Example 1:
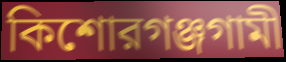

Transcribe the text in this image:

কিশোরগঞ্জগামী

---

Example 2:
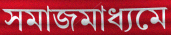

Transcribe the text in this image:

সমাজমাধ্যমে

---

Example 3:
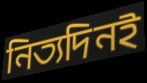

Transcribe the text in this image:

নিত্যদিনই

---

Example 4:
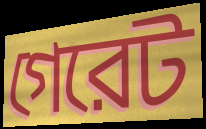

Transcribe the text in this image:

গেরেট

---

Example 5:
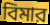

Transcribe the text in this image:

বিমার